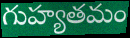
గుహ్యతమం